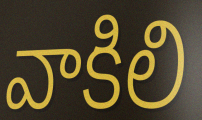
వాకిలి